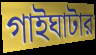
গাইঘাটার